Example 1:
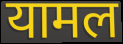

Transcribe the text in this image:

यामल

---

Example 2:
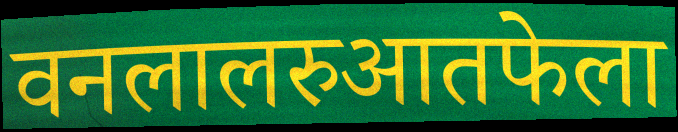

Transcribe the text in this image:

वनलालरुआतफेला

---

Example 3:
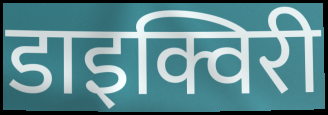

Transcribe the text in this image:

डाइक्विरी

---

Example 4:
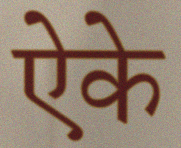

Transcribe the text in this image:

ऐके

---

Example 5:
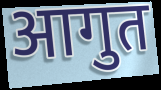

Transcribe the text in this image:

आगुत